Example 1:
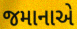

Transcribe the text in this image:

જમાનાએ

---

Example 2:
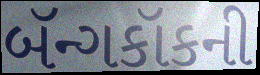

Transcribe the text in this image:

બૅન્ગકૉકની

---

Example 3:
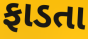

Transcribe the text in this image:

ફાડતા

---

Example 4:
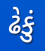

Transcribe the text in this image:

ઢેકું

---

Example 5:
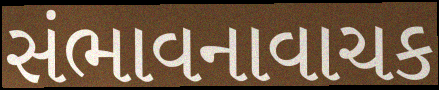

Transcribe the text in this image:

સંભાવનાવાચક